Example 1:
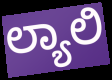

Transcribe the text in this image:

ಲ್ಯಾಲಿ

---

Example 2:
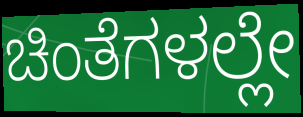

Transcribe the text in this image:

ಚಿಂತೆಗಳಲ್ಲೇ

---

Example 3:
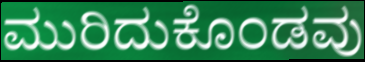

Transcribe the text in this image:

ಮುರಿದುಕೊಂಡವು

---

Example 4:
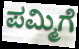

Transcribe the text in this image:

ಪಮ್ಮಿಗೆ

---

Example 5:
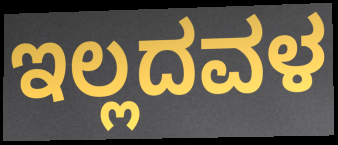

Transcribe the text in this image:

ಇಲ್ಲದವಳ